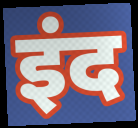
इंद